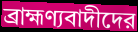
ব্রাহ্মণ্যবাদীদের